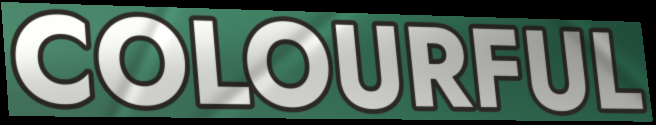
COLOURFUL